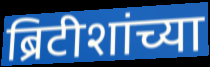
ब्रिटीशांच्या